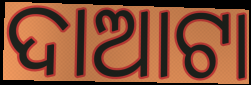
ଦାଆଟା